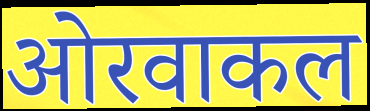
ओरवाकल